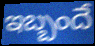
ఇబ్బందే